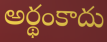
అర్థంకాదు